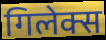
गिलेक्स